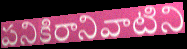
పనికిరానివాటిని